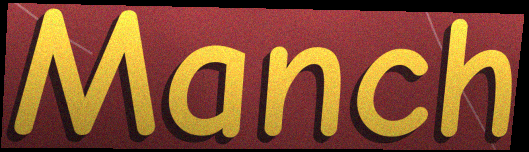
Manch